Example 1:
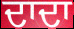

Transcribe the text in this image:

ਦਾਦਾ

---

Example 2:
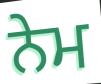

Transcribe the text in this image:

ਨੇਮ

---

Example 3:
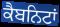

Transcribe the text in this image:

ਕੈਬਨਿਟਾਂ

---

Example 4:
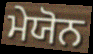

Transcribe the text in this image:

ਮੇਯੋਨ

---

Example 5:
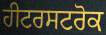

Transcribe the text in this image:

ਹੀਟਰਸਟਰੋਕ